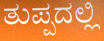
ತುಪ್ಪದಲ್ಲಿ